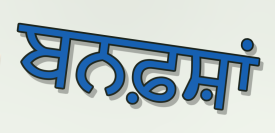
ਬਨਫ਼ਸ਼ਾਂ